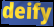
deify